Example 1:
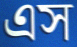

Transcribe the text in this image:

এস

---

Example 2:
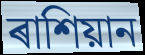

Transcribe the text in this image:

ৰাশিয়ান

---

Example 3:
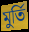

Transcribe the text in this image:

মুৰ্তি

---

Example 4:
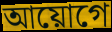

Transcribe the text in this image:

আয়োগে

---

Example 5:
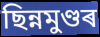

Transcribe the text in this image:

ছিন্নমুণ্ডৰ